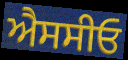
ਐਸਸੀਓ